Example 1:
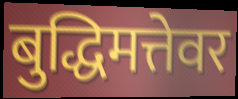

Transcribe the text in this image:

बुद्धिमत्तेवर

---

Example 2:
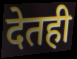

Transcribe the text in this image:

देतही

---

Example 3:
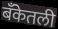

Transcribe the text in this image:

बँकेतली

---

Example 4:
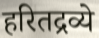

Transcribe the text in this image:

हरितद्रव्ये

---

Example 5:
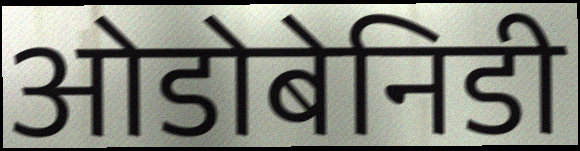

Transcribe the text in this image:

ओडोबेनिडी